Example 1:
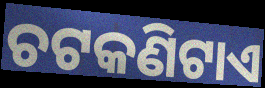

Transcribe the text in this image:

ଚଟକଣିଟାଏ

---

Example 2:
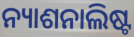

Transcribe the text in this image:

ନ୍ୟାଶନାଲିଷ୍ଟ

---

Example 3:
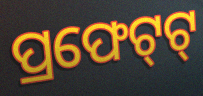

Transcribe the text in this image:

ପ୍ରଫେଟ୍‌ଟ୍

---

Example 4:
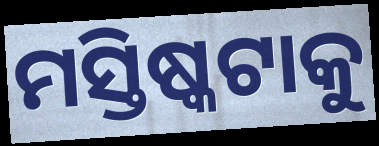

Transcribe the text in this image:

ମସ୍ତିଷ୍କଟାକୁ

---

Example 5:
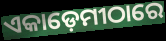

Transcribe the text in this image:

ଏକାଡ଼େମୀଠାରେ